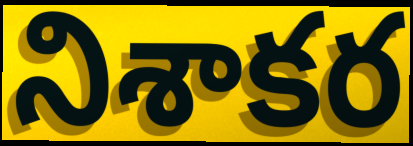
నిశాకర